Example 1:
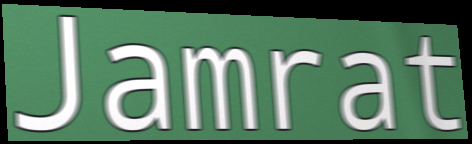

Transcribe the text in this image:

Jamrat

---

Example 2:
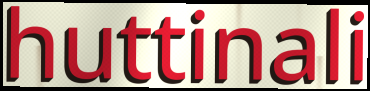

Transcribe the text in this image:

huttinali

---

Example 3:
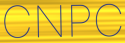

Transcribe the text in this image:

CNPC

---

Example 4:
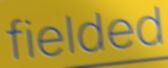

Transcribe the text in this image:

fielded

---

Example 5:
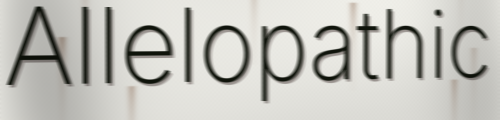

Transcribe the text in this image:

Allelopathic